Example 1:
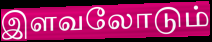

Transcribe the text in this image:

இளவலோடும்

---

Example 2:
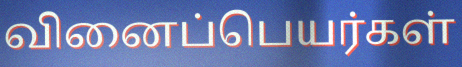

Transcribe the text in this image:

வினைப்பெயர்கள்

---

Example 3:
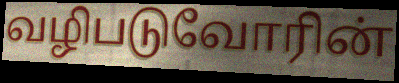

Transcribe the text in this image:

வழிபடுவோரின்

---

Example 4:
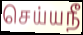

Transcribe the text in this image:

செய்யநீ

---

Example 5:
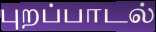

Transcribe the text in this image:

புறப்பாடல்